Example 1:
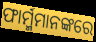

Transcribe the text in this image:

ଫାର୍ମ୍ମମାନଙ୍କରେ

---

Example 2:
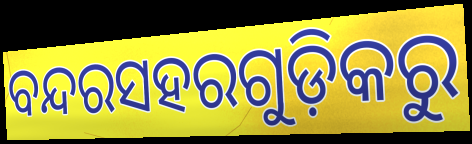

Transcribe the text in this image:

ବନ୍ଦରସହରଗୁଡ଼ିକରୁ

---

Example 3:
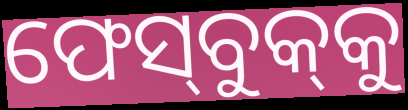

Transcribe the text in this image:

ଫେସ୍‌ବୁକ୍‌କୁ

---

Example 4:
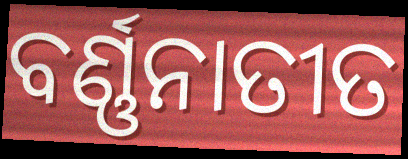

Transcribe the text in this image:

ବର୍ଣ୍ଣନାତୀତ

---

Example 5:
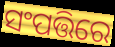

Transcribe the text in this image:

ସଂପତ୍ତିରେ